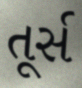
તૂર્સ